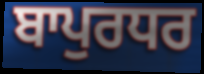
ਬਾਪੁਰਧਰ